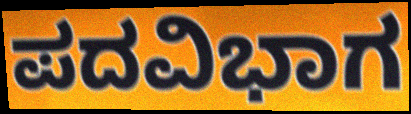
ಪದವಿಭಾಗ